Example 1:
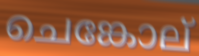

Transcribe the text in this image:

ചെങ്കോല്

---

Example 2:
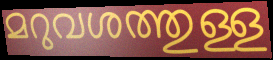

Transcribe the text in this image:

മറുവശത്തുള്ള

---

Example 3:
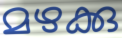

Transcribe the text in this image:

മഴക്കു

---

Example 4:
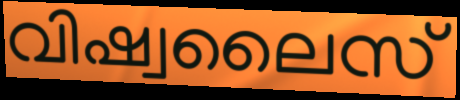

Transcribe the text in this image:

വിഷ്വലൈസ്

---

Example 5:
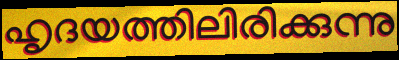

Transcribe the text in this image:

ഹൃദയത്തിലിരിക്കുന്നു